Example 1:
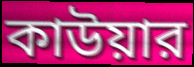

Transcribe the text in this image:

কাউয়ার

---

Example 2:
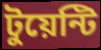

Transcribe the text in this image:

টুয়েন্টি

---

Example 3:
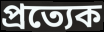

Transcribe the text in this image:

প্রত্যেক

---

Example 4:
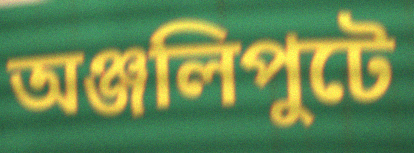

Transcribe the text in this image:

অঞ্জলিপুটে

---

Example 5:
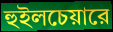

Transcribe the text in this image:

হুইলচেয়ারে